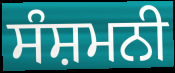
ਸੰਸ਼ਮਨੀ